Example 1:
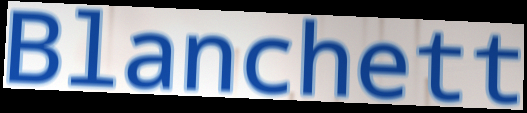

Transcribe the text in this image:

Blanchett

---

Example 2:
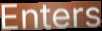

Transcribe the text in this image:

Enters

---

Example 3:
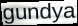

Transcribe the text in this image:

gundya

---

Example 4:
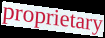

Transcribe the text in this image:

proprietary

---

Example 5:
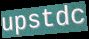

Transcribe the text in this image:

upstdc